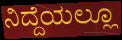
ನಿದ್ದೆಯಲ್ಲೂ